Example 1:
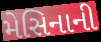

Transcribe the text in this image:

મેસિનાની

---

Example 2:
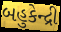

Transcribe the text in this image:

બહુકેન્દ્રી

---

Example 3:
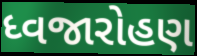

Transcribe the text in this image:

ધ્વજારોહણ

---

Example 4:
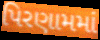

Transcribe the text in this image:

પિરણામમાં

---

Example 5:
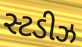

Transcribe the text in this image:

સ્ટડીઝ